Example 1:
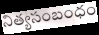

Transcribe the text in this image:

నిత్యసంబంధం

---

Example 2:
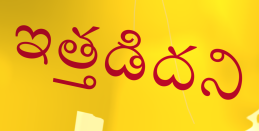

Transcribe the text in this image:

ఇత్తడిదని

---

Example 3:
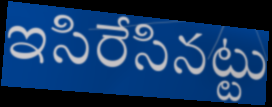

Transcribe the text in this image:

ఇసిరేసినట్టు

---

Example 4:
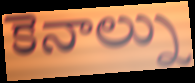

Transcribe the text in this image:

కెనాల్ను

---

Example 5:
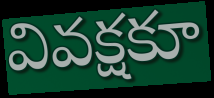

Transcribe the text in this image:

వివక్షకూ